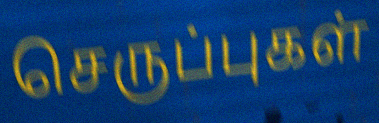
செருப்புகள்